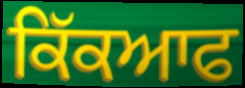
ਕਿੱਕਆਫ